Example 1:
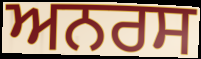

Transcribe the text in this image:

ਅਨਰਸ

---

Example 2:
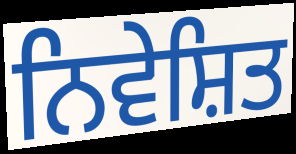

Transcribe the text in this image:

ਨਿਵੇਸ਼ਿਤ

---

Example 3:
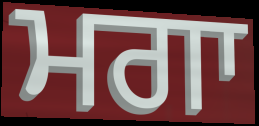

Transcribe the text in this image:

ਮਗਾ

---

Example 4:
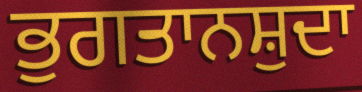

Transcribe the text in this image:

ਭੁਗਤਾਨਸ਼ੁਦਾ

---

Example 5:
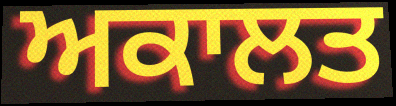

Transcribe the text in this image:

ਅਕਾਲਤ